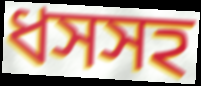
ধসসহ